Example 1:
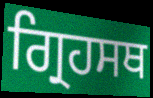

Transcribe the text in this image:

ਗ੍ਰਿਹਸਥ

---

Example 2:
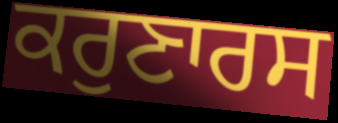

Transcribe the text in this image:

ਕਰੁਣਾਰਸ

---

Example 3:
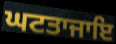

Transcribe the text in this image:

ਘਟਤਾਜਾਇ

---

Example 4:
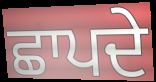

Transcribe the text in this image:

ਛਾਪਦੇ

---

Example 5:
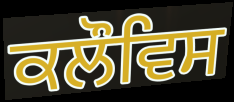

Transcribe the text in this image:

ਕਲੌਵਿਸ